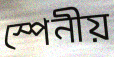
স্পেনীয়